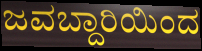
ಜವಬ್ದಾರಿಯಿಂದ